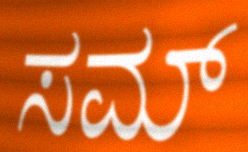
ಸಮ್